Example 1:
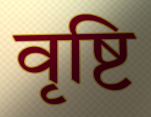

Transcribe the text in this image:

वृष्टि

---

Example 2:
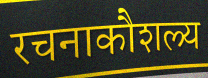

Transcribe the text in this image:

रचनाकौशल्य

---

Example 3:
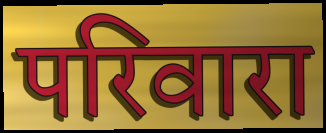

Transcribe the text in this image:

परिवारा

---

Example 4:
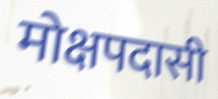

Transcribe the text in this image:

मोक्षपदासी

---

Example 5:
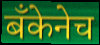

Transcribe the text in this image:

बँकेनेच